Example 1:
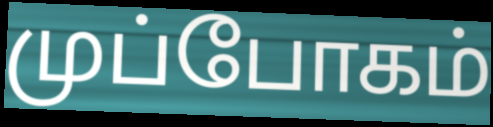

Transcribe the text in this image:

முப்போகம்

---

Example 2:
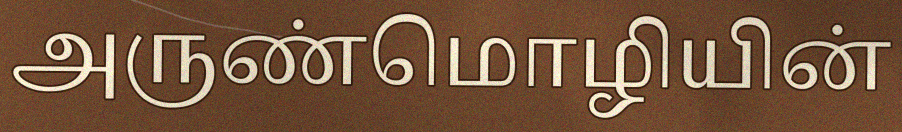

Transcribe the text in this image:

அருண்மொழியின்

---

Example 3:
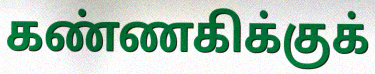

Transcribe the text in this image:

கண்ணகிக்குக்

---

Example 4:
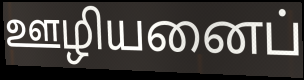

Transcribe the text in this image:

ஊழியனைப்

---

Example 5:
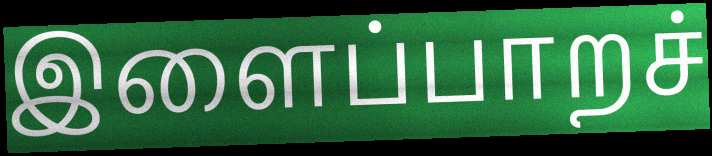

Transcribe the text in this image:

இளைப்பாறச்